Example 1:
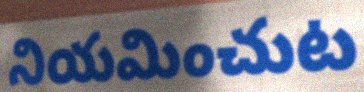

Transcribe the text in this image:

నియమించుట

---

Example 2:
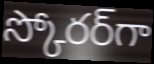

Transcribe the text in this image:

స్కోరర్‌గా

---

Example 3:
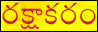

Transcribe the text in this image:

రక్షాకరం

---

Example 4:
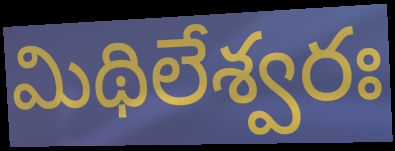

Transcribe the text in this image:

మిథిలేశ్వరః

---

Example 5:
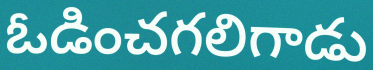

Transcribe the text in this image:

ఓడించగలిగాడు